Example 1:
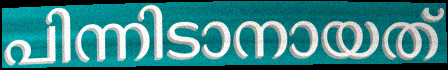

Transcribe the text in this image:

പിന്നിടാനായത്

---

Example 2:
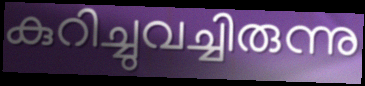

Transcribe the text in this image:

കുറിച്ചുവച്ചിരുന്നു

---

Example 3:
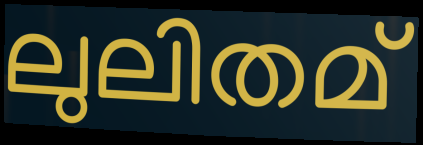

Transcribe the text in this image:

ലുലിതമ്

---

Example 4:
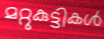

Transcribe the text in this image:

മറ്റുകുട്ടികൾ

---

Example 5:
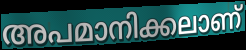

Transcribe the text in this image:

അപമാനിക്കലാണ്